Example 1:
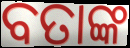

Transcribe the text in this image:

ବତାଙ୍କ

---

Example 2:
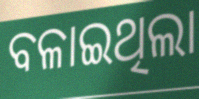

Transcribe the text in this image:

ବଳାଇଥିଲା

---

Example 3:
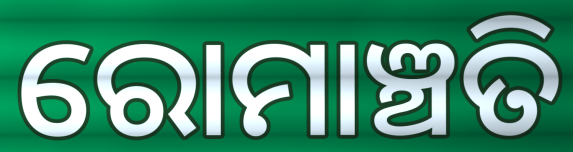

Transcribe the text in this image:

ରୋମାଞ୍ଚତି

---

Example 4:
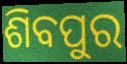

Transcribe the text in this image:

ଶିବପୁର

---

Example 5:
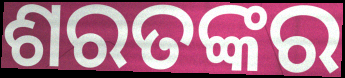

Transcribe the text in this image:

ଶରତଙ୍କର